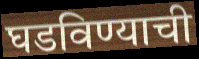
घडविण्याची